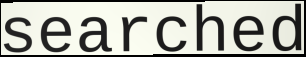
searched